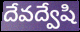
దేవద్వేషి